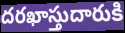
దరఖాస్తుదారుకి